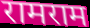
रामराम